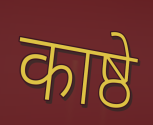
काष्ठे